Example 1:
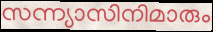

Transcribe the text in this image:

സന്ന്യാസിനിമാരും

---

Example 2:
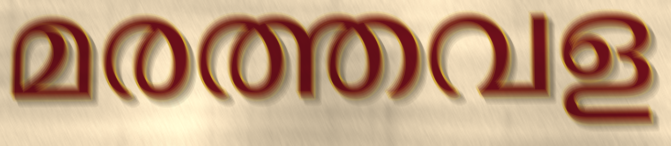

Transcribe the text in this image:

മരത്തവള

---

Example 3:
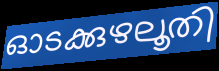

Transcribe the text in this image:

ഓടക്കുഴലൂതി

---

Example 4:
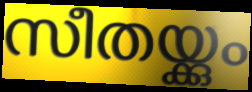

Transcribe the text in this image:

സീതയ്ക്കും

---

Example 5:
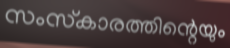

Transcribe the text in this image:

സംസ്‌കാരത്തിന്റെയും